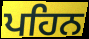
ਪਹਿਨ